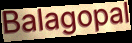
Balagopal